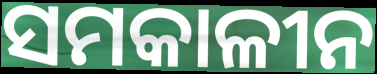
ସମକାଳୀନ